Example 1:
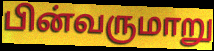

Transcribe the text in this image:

பின்வருமாறு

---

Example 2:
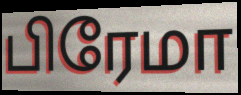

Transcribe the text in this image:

பிரேமா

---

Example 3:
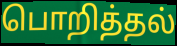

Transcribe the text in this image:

பொறித்தல்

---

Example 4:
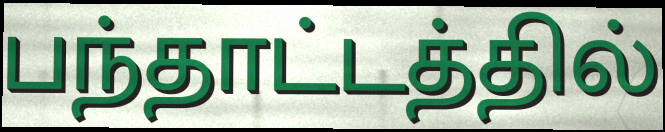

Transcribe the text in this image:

பந்தாட்டத்தில்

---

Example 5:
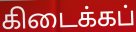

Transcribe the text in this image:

கிடைக்கப்